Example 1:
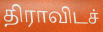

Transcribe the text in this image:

திராவிடச்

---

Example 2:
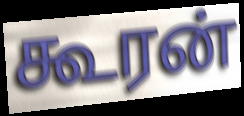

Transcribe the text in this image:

கூரன்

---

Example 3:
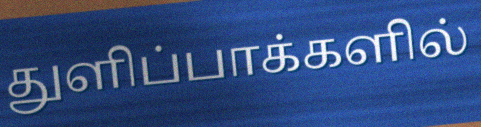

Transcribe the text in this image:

துளிப்பாக்களில்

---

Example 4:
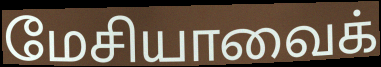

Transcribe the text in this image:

மேசியாவைக்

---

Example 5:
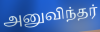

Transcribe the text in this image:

அனுவிந்தர்